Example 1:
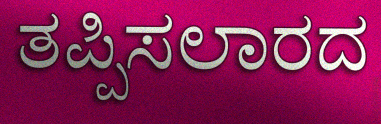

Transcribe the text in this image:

ತಪ್ಪಿಸಲಾರದ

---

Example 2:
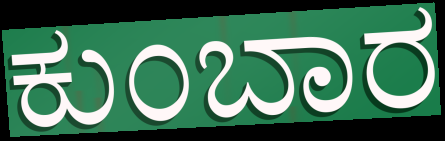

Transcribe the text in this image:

ಕುಂಬಾರ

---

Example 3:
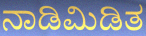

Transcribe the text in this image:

ನಾಡಿಮಿಡಿತ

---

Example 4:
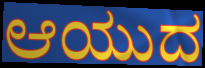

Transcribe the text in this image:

ಆಯುದ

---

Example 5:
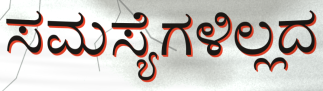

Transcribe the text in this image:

ಸಮಸ್ಯೆಗಳಿಲ್ಲದ